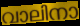
വാലിനാ